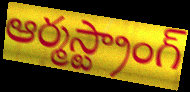
ఆర్మస్ట్రాంగ్